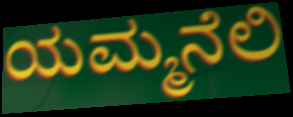
ಯಮ್ಮನೆಲಿ